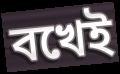
বখেই